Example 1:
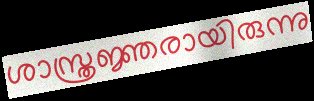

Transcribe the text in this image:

ശാസ്ത്രജ്ഞരായിരുന്നു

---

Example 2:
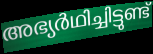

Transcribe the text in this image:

അഭ്യർഥിച്ചിട്ടുണ്ട്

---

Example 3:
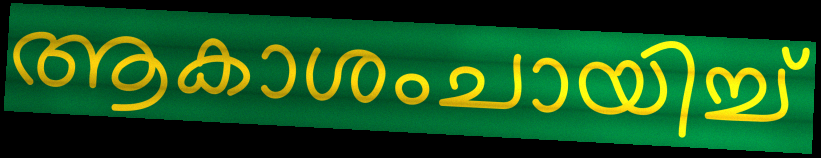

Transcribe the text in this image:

ആകാശംചായിച്ച്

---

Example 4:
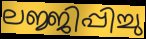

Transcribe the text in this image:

ലജ്ജിപ്പിച്ചു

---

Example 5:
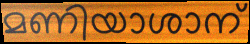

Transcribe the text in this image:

മണിയാശാന്